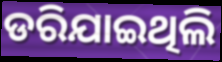
ଡରିଯାଇଥିଲି